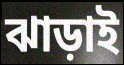
ঝাড়াই